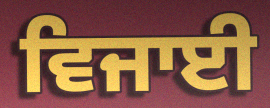
ਵਿਜਾਈ